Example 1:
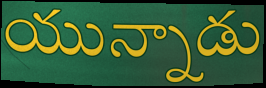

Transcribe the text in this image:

యున్నాడు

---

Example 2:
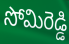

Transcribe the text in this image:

సోమిరెడ్డి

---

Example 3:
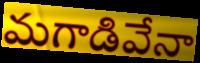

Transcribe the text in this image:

మగాడివేనా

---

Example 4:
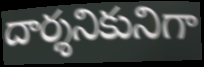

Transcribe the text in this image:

దార్శనికునిగా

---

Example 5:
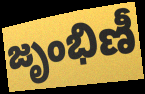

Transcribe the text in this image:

జృంభిణీ